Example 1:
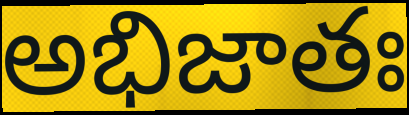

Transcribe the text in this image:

అభిజాతః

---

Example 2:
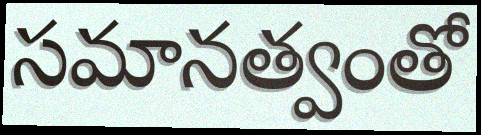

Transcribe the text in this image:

సమానత్వంతో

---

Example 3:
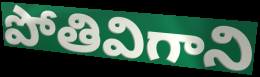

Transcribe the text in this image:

పోతివిగాని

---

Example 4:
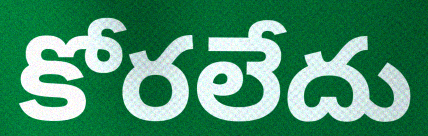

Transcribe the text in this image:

కోరలేదు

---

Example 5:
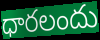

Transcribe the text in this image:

ధారలందు